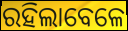
ରହିଲାବେଳେ